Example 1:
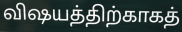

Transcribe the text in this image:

விஷயத்திற்காகத்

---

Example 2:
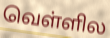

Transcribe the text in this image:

வெள்ளில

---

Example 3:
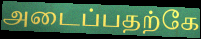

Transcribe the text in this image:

அடைப்பதற்கே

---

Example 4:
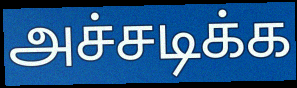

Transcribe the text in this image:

அச்சடிக்க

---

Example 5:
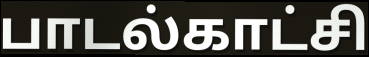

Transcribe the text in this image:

பாடல்காட்சி